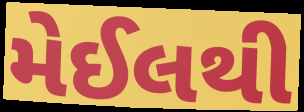
મેઈલથી